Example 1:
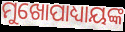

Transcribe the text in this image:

ମୁଖୋପାଧ୍ୟାୟଙ୍କ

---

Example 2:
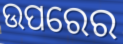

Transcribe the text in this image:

ଉପରେର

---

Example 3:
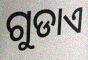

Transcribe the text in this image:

ଗୁଡାଏ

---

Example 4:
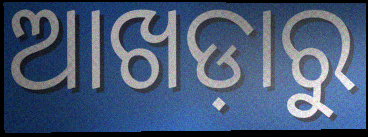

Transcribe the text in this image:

ଆଖଡ଼ାରୁ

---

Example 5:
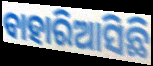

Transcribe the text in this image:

ବାହାରିଆସିଛି